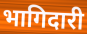
भागिदारी